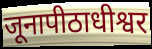
जूनापीठाधीश्वर